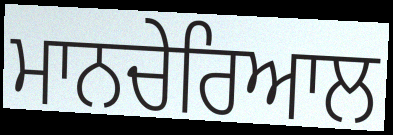
ਮਾਨਚੇਰਿਆਲ